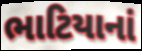
ભાટિયાનાં